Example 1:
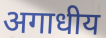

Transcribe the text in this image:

अगाधीय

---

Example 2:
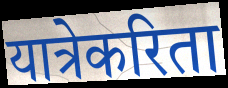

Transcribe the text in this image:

यात्रेकरिता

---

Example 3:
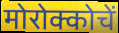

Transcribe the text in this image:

मोरोक्कोचें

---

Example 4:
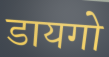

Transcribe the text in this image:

डायगो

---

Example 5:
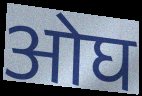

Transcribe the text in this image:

ओघ